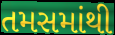
તમસમાંથી